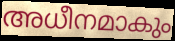
അധീനമാകും